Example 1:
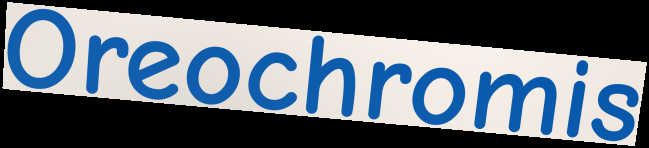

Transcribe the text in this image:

Oreochromis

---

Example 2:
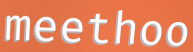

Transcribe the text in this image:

meethoo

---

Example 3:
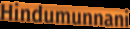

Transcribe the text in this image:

Hindumunnani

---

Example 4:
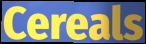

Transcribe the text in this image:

Cereals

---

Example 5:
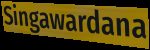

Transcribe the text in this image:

Singawardana